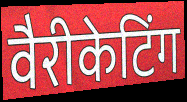
वैरीकेटिंग